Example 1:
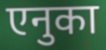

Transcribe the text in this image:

एनुका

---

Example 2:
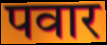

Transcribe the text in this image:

पवार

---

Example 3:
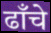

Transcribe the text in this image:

ढाँचे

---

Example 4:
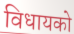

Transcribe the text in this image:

विधायको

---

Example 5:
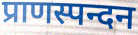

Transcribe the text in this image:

प्राणस्पन्दन